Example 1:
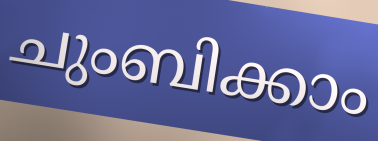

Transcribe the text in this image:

ചുംബിക്കാം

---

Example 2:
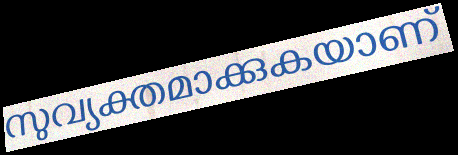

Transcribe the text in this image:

സുവ്യക്തമാക്കുകയാണ്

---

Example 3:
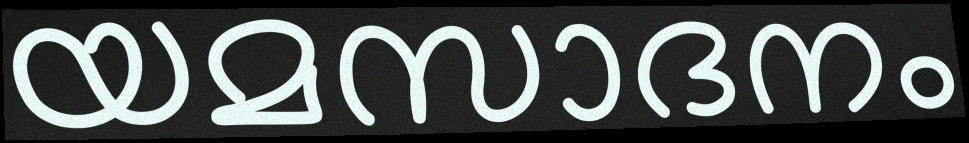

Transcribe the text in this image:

യമസാദനം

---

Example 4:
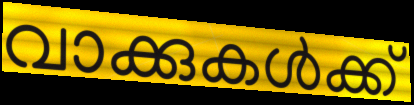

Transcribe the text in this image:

വാക്കുകൾക്ക്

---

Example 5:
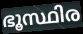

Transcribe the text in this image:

ഭൂസ്ഥിര